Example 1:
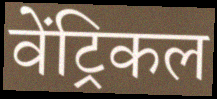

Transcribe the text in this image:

वेंट्रिकल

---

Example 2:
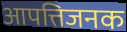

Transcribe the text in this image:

आपत्तिजनक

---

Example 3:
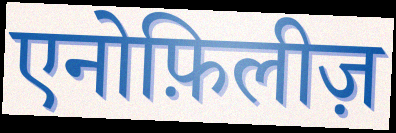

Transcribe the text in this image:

एनोफ़िलीज़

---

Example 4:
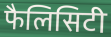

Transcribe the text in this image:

फैलिसिटी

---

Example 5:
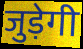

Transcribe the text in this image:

जुड़ेगी